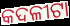
କଦଳୀଟା